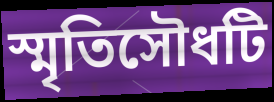
স্মৃতিসৌধটি